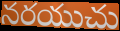
నరయుచు